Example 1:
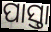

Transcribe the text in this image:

ପାସ୍ତା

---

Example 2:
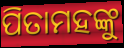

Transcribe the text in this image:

ପିତାମହଙ୍କୁ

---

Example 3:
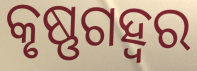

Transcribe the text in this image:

କୃଷ୍ଣଗହ୍ୱର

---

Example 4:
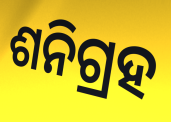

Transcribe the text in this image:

ଶନିଗ୍ରହ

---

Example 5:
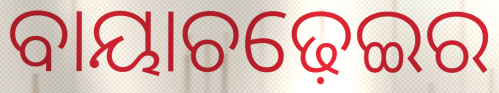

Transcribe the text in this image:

ବାୟାଚଢ଼େଇର